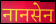
नानसेन